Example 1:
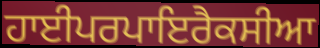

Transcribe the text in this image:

ਹਾਈਪਰਪਾਇਰੈਕਸੀਆ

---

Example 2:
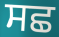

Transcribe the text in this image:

ਸਛ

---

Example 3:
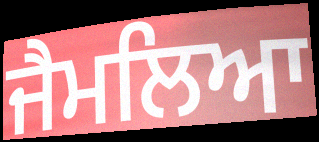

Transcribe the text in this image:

ਜੈਮਲਿਆ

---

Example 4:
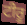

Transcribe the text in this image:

ਟੀਰੂ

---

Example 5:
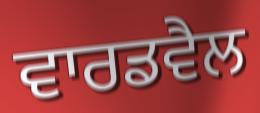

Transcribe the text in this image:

ਵਾਰਡਵੈਲ